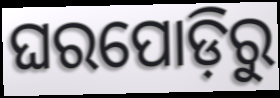
ଘରପୋଡ଼ିରୁ